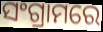
ସଂଗ୍ରାମରେ